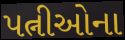
પત્નીઓના